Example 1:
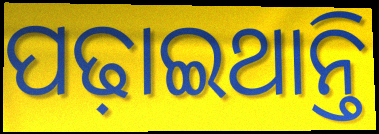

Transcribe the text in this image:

ପଢ଼ାଇଥାନ୍ତି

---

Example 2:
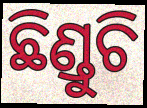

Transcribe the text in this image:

ଛିଣ୍ଡୁଚି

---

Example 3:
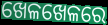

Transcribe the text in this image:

ଖେଳଖେଳରେ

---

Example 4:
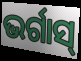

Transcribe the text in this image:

ଭର୍ଗାସ୍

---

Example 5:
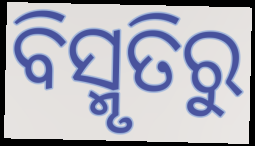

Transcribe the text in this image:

ବିସ୍ମୃତିରୁ